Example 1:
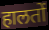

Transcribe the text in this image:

हालतों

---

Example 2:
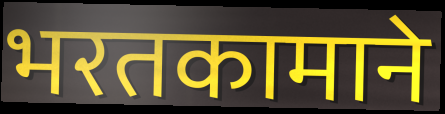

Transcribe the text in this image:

भरतकामाने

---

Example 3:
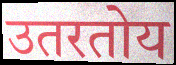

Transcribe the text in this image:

उतरतोय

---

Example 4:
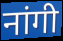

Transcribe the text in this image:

नांगी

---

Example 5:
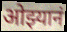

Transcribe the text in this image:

ओझ्यानं